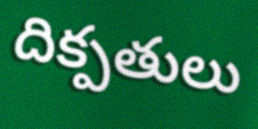
దిక్పతులు